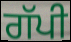
ਗੱਪੀ